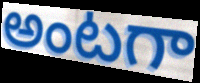
అంటగా